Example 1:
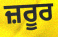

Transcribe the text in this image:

ਜ਼ਰੂਰ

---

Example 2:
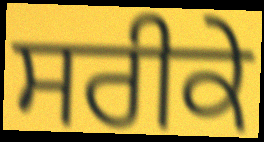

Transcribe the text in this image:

ਸਰੀਕੇ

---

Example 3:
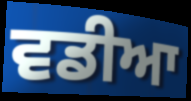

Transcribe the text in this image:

ਵਡੀਆ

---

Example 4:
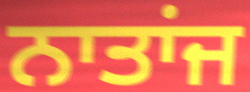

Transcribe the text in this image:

ਨਾਤਾਂਜ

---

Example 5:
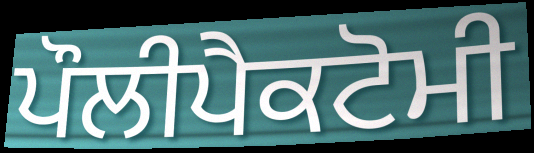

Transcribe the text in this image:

ਪੌਲੀਪੈਕਟੋਮੀ